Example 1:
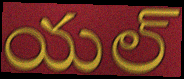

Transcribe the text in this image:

యల్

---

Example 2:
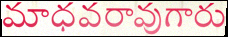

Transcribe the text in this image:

మాధవరావుగారు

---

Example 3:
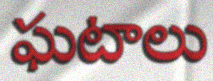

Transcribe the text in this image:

ఘటాలు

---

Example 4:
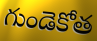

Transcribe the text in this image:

గుండెకోత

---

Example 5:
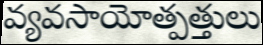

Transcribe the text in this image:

వ్యవసాయోత్పత్తులు